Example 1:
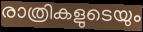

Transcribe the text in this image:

രാത്രികളുടെയും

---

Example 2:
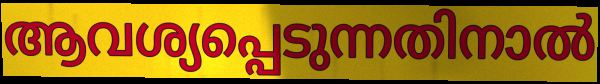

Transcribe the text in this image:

ആവശ്യപ്പെടുന്നതിനാൽ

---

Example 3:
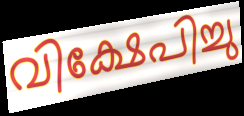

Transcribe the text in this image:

വിക്ഷേപിച്ചു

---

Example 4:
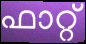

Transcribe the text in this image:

ഫാറ്റ്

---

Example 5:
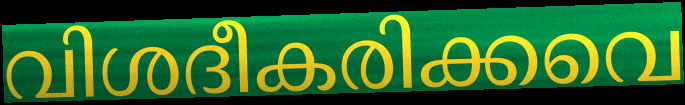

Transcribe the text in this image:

വിശദീകരിക്കവെ